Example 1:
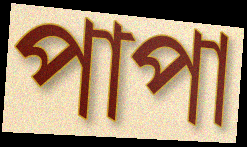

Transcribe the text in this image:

পাপা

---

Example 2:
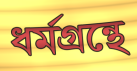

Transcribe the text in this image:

ধর্মগ্রন্থে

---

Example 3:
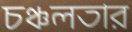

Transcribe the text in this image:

চঞ্চলতার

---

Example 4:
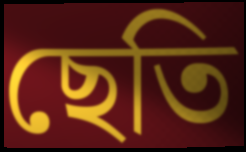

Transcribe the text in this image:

ছেতি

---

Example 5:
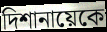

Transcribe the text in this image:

দিশানায়েকে